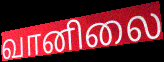
வானிலை